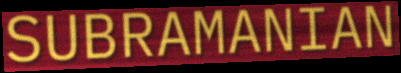
SUBRAMANIAN